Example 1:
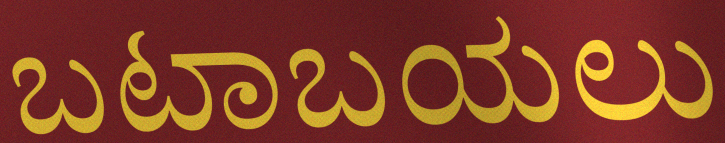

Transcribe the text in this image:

ಬಟಾಬಯಲು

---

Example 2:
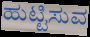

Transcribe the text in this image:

ಹುಟ್ಟಿಸುವ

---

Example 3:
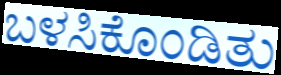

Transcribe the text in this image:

ಬಳಸಿಕೊಂಡಿತು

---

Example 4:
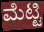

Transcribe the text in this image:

ಮೆಟ್ಟಿ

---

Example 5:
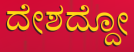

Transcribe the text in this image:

ದೇಶದ್ದೋ